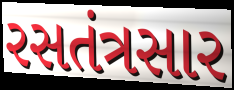
રસતંત્રસાર